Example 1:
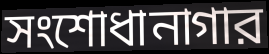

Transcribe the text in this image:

সংশোধানাগার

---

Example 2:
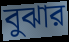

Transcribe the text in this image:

বুঝার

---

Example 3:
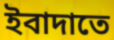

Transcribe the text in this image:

ইবাদাতে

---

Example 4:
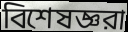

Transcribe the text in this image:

বিশেষজ্ঞরা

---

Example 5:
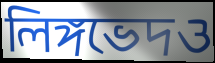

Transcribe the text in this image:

লিঙ্গভেদও